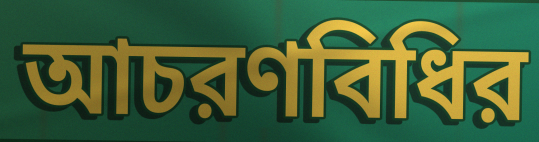
আচরণবিধির